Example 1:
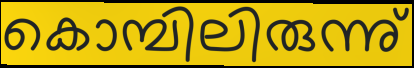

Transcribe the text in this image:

കൊമ്പിലിരുന്നു്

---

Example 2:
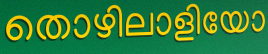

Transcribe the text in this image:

തൊഴിലാളിയോ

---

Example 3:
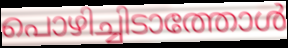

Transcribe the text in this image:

പൊഴിച്ചിടാത്തോൾ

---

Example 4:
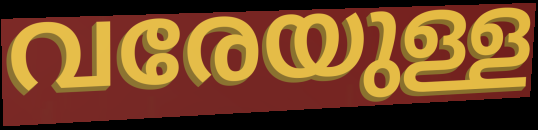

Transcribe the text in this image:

വരേയുള്ള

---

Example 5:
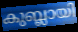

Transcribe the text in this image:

കുബ്ലായി